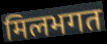
मिलभगत